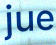
jue